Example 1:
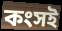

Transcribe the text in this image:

কংসই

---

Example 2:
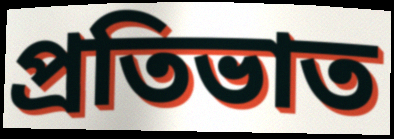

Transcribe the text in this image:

প্ৰতিভাত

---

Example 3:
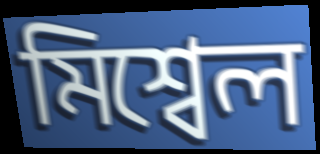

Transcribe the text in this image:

মিশ্বেল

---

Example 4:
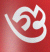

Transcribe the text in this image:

গু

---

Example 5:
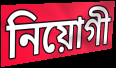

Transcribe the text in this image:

নিয়োগী